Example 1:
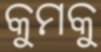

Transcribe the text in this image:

କୁମକୁ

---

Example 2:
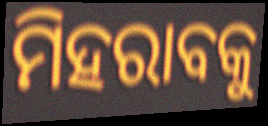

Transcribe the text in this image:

ମିହରାବକୁ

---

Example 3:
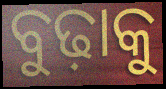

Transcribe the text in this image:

ବୁଢ଼ାକୁ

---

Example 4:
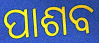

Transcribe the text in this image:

ପାଶବ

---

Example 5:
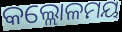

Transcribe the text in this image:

କଲ୍ଲୋଳମୟ